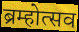
ब्रम्होत्सव